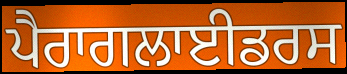
ਪੈਰਾਗਲਾਈਡਰਸ